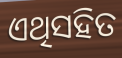
ଏଥିସହିତ